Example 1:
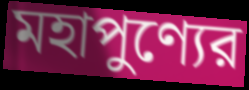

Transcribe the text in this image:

মহাপুণ্যের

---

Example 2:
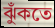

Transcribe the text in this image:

ঝুঁকতে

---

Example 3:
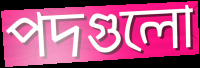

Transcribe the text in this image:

পদগুলো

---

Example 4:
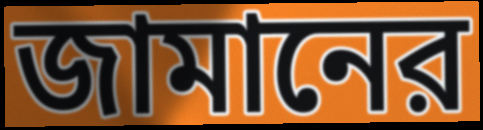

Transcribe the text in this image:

জামানের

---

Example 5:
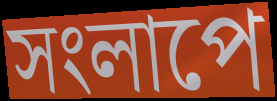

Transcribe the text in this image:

সংলাপে